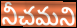
నీచమని